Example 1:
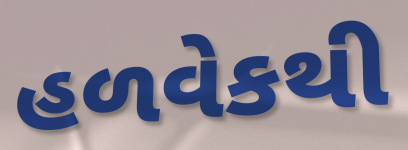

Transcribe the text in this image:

હળવેકથી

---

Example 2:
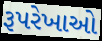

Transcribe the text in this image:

રૂપરેખાઓ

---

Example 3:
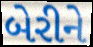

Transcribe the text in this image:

બેરીને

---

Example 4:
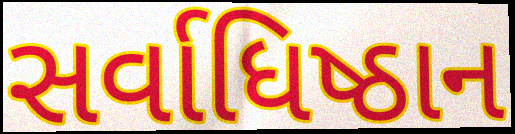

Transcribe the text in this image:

સર્વાધિષ્ઠાન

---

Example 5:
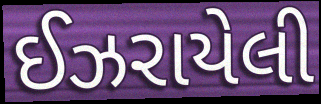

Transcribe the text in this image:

ઈઝરાયેલી